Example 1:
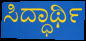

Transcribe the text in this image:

ಸಿದ್ಧಾರ್ಥಿ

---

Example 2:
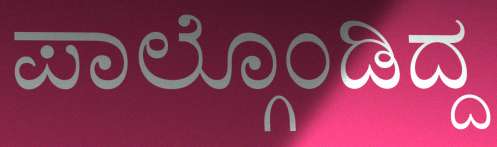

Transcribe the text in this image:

ಪಾಲ್ಗೊಂಡಿದ್ದ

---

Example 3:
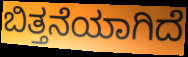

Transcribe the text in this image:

ಬಿತ್ತನೆಯಾಗಿದೆ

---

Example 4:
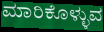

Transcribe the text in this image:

ಮಾರಿಕೊಳ್ಳುವ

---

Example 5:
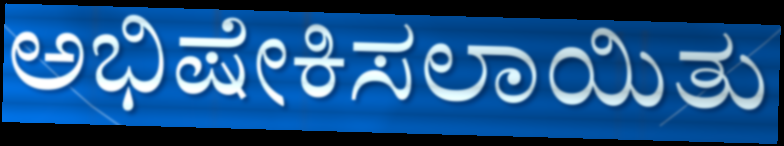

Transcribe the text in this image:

ಅಭಿಷೇಕಿಸಲಾಯಿತು